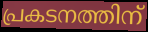
പ്രകടനത്തിന്